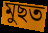
মুছত